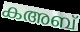
കഅബ്